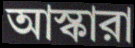
আস্কারা